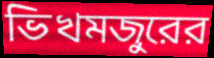
ভিখমজুরের